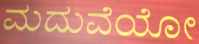
ಮದುವೆಯೋ